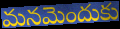
మనమెందుకు